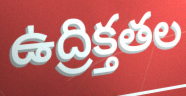
ఉద్రిక్తతల